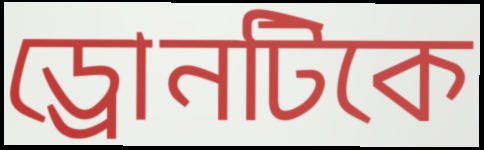
ড্রোনটিকে